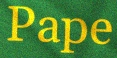
Pape